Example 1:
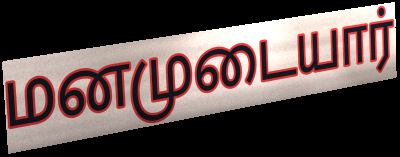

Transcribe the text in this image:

மனமுடையார்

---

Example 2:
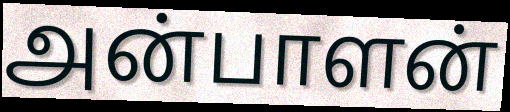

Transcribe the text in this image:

அன்பாளன்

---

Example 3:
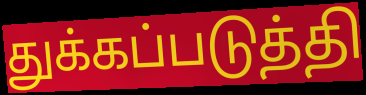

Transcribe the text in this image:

துக்கப்படுத்தி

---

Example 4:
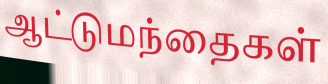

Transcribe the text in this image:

ஆட்டுமந்தைகள்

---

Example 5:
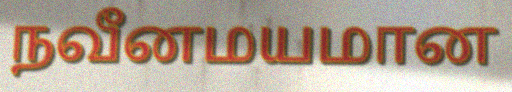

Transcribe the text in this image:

நவீனமயமான